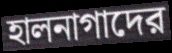
হালনাগাদের